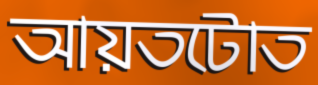
আয়তটোত